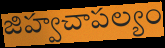
జిహ్వచాపల్యం